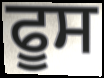
ਫੂਸ